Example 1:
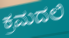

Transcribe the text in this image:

ಕ್ರಮದಲಿ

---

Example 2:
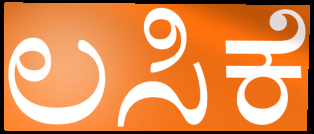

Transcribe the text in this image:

ಲಸಿಕೆ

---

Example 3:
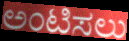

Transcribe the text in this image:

ಅಂಟಿಸಲು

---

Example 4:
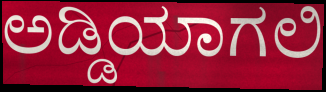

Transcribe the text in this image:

ಅಡ್ಡಿಯಾಗಲಿ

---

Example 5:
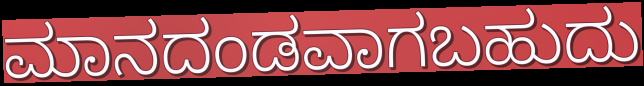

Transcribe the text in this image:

ಮಾನದಂಡವಾಗಬಹುದು